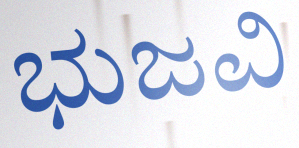
ಭುಜವಿ